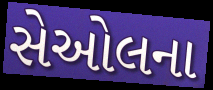
સેઓલના